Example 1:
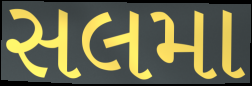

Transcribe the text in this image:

સલમા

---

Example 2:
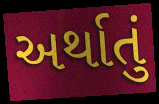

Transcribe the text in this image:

અર્થાતું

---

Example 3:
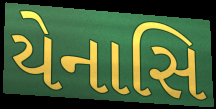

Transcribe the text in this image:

યેનાસિ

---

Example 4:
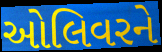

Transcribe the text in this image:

ઓલિવરને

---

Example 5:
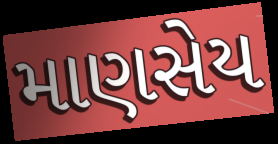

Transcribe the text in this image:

માણસેય